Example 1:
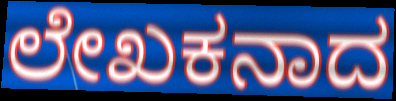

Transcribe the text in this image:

ಲೇಖಕನಾದ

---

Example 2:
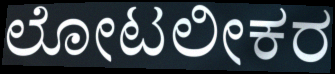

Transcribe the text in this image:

ಲೋಟಲೀಕರ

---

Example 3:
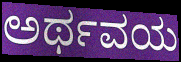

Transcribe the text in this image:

ಅರ್ಥವಯ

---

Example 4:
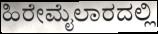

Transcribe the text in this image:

ಹಿರೇಮೈಲಾರದಲ್ಲಿ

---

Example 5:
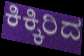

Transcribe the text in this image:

ಕಿಕ್ಕಿರಿದ